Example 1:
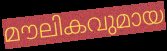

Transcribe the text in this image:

മൗലികവുമായ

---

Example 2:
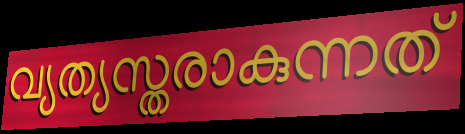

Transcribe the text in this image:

വ്യത്യസ്തരാകുന്നത്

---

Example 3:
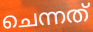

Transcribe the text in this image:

ചെന്നത്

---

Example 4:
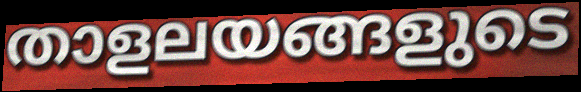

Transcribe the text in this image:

താളലയങ്ങളുടെ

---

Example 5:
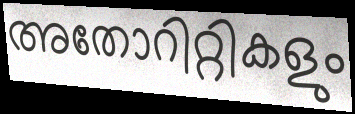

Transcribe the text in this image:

അതോറിറ്റികളും